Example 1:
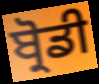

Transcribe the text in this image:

ਬ੍ਰੋਡੀ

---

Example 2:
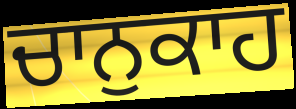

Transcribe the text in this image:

ਚਾਨੁਕਾਹ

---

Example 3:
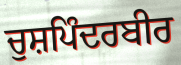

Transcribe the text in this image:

ਚੁਸ਼ਪਿੰਦਰਬੀਰ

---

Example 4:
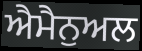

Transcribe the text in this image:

ਐਮੈਨੁਅਲ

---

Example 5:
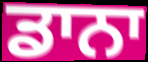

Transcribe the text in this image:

ਡਾਨਾ